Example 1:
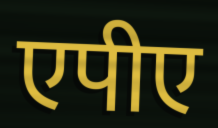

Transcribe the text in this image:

एपीए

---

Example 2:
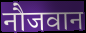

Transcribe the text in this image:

नौजवान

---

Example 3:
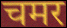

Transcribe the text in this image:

चमर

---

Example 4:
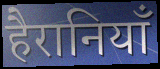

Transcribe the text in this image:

हैरानियाँ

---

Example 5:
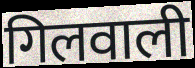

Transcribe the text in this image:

गिलवाली